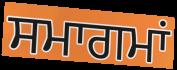
ਸਮਾਗਮਾਂ